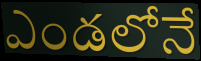
ఎండలోనే